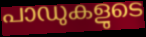
പാഡുകളുടെ